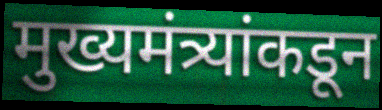
मुख्यमंत्र्यांकडून